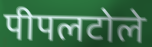
पीपलटोले